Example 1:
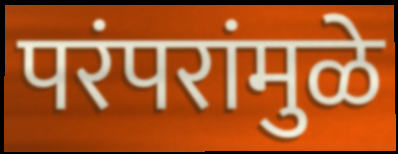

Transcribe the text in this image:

परंपरांमुळे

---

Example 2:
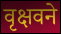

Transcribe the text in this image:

वृक्षवने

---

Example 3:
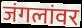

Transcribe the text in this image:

जंगलांवर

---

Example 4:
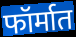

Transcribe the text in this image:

फॉर्मात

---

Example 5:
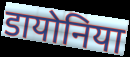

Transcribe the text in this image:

डायोनिया